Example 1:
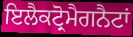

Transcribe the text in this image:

ਇਲੈਕਟ੍ਰੋਮੈਗਨੈਟਾਂ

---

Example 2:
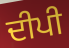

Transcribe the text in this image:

ਦੀਪੀ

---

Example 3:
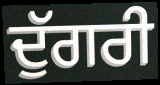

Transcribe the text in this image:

ਦੁੱਗਰੀ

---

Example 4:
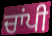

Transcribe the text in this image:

ਚਾਂਪੀ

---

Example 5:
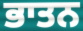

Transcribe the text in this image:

ਭਾਤਨ